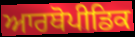
ਆਰਥੋਪੀਡਿਕ